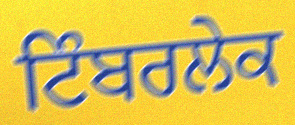
ਟਿੰਬਰਲੇਕ